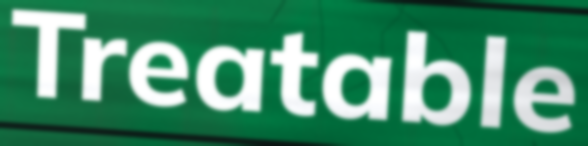
Treatable